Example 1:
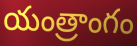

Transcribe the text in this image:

యంత్రాంగం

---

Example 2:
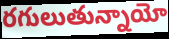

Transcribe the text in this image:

రగులుతున్నాయో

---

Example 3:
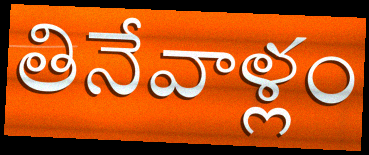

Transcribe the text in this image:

తినేవాళ్లం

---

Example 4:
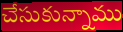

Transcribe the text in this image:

చేసుకున్నాము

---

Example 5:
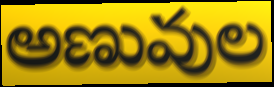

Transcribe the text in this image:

అణువుల